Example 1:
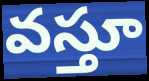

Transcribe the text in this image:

వస్తూ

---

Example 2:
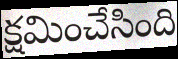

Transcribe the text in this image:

క్షమించేసింది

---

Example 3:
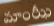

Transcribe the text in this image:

మాంఝీ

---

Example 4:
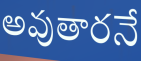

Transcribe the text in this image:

అవుతారనే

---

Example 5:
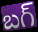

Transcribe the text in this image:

బగ్